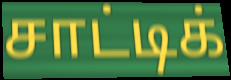
சாட்டிக்